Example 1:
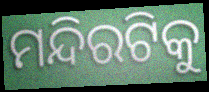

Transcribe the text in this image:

ମନ୍ଦିରଟିକୁ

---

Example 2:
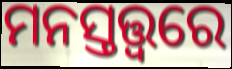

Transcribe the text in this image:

ମନସ୍ତତ୍ତ୍ଵରେ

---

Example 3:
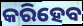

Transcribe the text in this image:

କରିହେବ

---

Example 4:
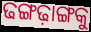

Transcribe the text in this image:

ଢଙ୍ଗଢ଼ାଙ୍ଗକୁ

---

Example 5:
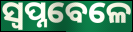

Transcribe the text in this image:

ସ୍ଵପ୍ନବେଳେ